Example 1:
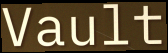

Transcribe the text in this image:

Vault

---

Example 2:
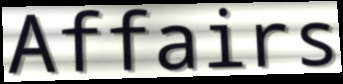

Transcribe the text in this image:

Affairs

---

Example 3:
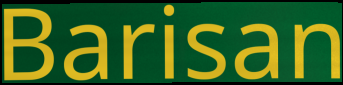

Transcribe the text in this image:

Barisan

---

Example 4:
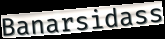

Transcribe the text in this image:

Banarsidass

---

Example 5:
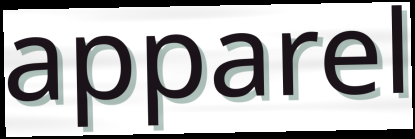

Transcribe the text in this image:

apparel